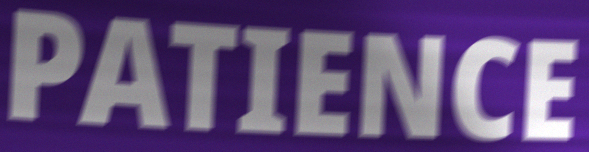
PATIENCE